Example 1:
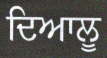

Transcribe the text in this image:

ਦਿਆਲੂ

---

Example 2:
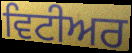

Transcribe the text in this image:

ਵਿਟੀਅਰ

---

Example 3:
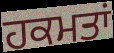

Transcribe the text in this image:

ਹਕਮਤਾਂ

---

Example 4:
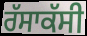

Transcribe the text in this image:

ਰੱਸਾਕੱਸੀ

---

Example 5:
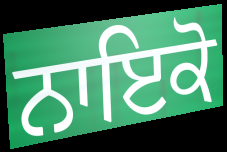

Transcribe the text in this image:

ਨਾਇਕੋ